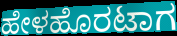
ಹೇಳಹೊರಟಾಗ